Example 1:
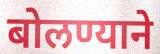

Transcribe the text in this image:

बोलण्याने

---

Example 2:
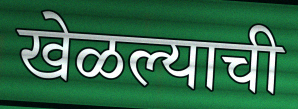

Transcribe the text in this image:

खेळल्याची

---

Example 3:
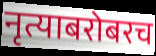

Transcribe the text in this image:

नृत्याबरोबरच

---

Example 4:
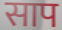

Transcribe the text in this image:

साप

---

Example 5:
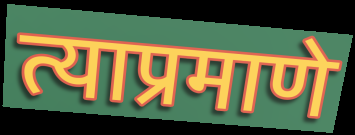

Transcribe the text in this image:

त्याप्रमाणे